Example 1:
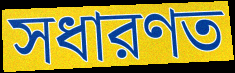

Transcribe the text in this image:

সধারণত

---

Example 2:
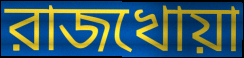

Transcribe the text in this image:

রাজখোয়া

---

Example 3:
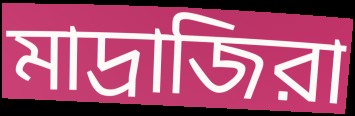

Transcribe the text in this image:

মাদ্রাজিরা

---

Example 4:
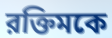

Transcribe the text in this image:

রক্তিমকে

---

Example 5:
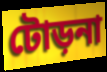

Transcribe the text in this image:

টোড়না